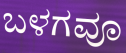
ಬಳಗವೂ